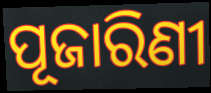
ପୂଜାରିଣୀ